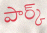
పార్క్